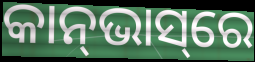
କାନ୍‌ଭାସ୍‌ରେ